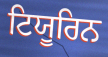
ਟਿਯੂਰਿਨ